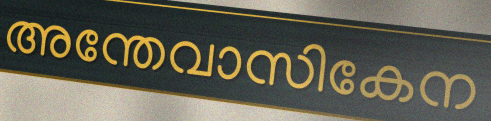
അന്തേവാസികേന